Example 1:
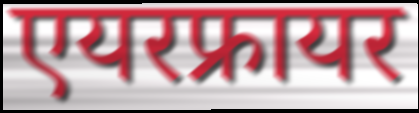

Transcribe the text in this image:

एयरफ्रायर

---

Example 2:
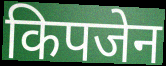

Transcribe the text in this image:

किपजेन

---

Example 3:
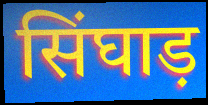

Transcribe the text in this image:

सिंघाड़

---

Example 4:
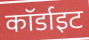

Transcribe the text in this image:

कॉर्डाइट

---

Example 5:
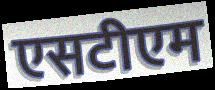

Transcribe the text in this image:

एसटीएम